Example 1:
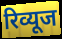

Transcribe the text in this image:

रिव्यूज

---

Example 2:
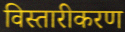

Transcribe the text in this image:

विस्तारीकरण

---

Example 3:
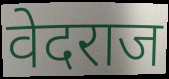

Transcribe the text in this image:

वेदराज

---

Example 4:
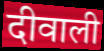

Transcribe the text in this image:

दीवाली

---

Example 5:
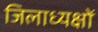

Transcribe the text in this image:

जिलाध्यक्षों